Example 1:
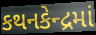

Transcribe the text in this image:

કથનકેન્દ્રમાં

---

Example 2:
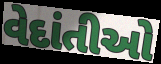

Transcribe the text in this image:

વેદાંતીઓ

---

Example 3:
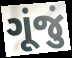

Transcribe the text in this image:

ગૂંજું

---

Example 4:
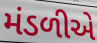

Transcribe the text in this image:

મંડળીએ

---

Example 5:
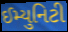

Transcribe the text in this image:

ઈમ્યુનિટી